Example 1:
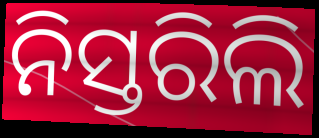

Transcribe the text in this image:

ନିସ୍ତରିଲି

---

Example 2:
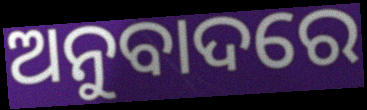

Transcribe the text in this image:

ଅନୁବାଦରେ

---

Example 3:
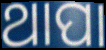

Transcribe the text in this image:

ଥାପା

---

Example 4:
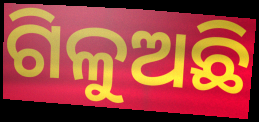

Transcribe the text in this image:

ଗିଳୁଅଛି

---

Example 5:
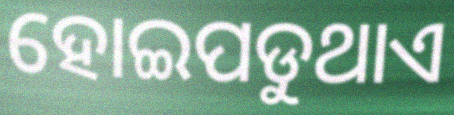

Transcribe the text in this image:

ହୋଇପଡୁଥାଏ